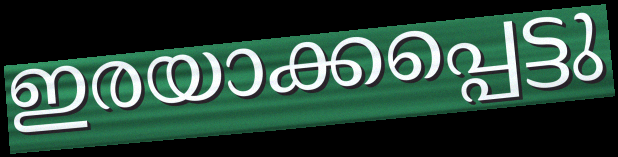
ഇരയാക്കപ്പെട്ടു